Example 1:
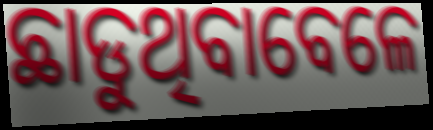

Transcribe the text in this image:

ଛାଡୁଥିବାବେଳେ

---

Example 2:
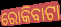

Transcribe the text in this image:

ରୋକିବାଟା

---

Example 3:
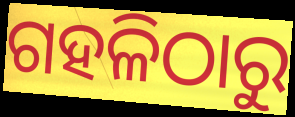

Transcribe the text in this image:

ଗହଳିଠାରୁ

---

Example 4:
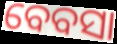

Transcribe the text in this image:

ବେବସା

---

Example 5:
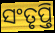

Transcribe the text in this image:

ସଂତୃପ୍ତି